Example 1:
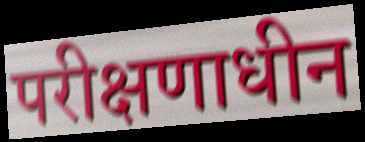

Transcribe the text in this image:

परीक्षणाधीन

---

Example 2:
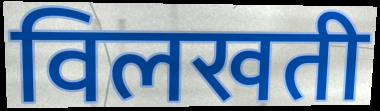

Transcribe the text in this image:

विलखती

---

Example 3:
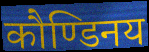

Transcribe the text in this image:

कौण्डिनय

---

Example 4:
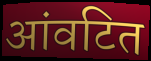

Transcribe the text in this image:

आंवटित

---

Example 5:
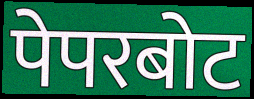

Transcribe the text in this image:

पेपरबोट